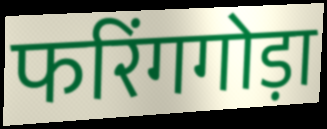
फरिंगगोड़ा